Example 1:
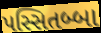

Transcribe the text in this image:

પસ્સિતબ્બા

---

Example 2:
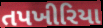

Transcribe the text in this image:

તપખીરિયા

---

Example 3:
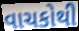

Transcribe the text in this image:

વાચકોથી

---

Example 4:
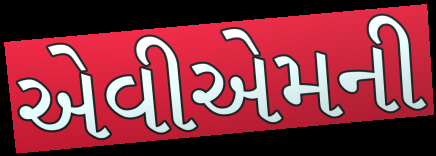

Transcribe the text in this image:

એવીએમની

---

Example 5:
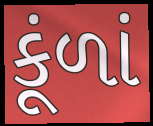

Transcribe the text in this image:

કૂંળાં